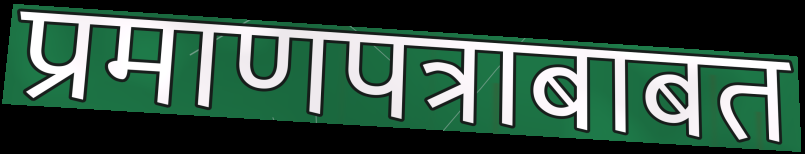
प्रमाणपत्राबाबत